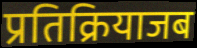
प्रतिक्रियाजब